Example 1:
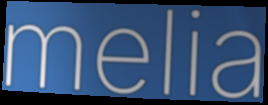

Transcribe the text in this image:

melia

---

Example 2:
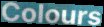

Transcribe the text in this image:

Colours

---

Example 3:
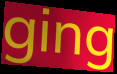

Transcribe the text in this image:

ging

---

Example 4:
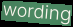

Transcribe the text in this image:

wording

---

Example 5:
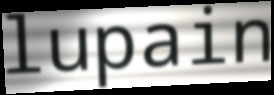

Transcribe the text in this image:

lupain